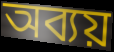
অব্যয়